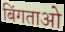
बिंगताओ